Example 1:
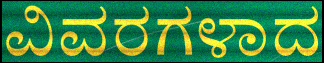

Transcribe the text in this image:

ವಿವರಗಳಾದ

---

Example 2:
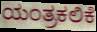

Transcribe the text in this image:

ಯಂತ್ರಕಲಿಕೆ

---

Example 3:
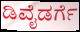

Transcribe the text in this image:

ಡಿವೈಡರ್ಗೆ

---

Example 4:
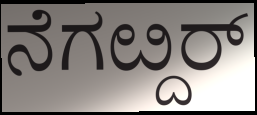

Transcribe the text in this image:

ನೆಗೞ್ದರ್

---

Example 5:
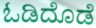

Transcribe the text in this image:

ಓಡಿದೊಡೆ